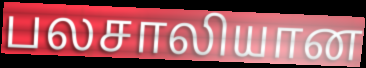
பலசாலியான